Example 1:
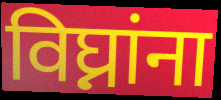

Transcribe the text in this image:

विघ्नांना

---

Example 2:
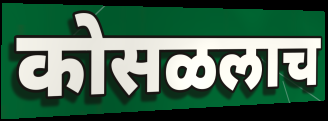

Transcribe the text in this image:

कोसळलाच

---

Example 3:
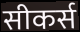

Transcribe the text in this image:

सीकर्स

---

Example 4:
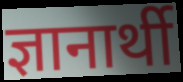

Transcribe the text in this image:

ज्ञानार्थी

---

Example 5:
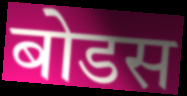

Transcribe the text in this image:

बोडस